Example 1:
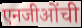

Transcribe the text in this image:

एनजीओंची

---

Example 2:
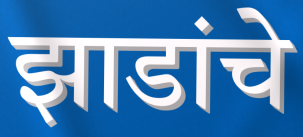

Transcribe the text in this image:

झाडांचे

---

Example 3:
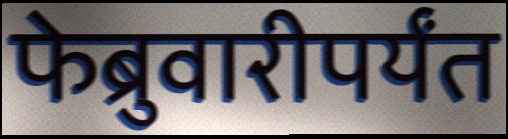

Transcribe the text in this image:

फेब्रुवारीपर्यंत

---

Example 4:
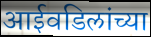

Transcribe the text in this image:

आईवडिलांच्या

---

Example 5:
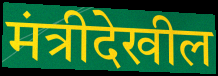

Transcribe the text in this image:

मंत्रीदेखील